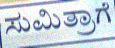
ಸುಮಿತ್ರಾಗೆ